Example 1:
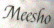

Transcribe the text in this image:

Meesho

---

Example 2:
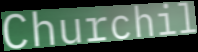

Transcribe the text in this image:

Churchil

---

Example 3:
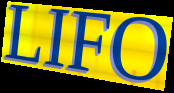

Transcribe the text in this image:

LIFO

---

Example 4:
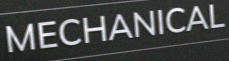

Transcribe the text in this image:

MECHANICAL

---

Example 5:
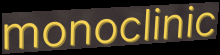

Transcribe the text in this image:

monoclinic